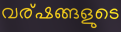
വര്ഷങ്ങളുടെ